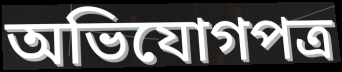
অভিযোগপত্র